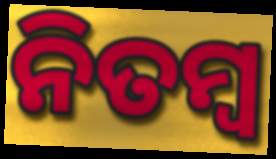
ନିତମ୍ବ